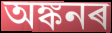
অঙ্কনৰ